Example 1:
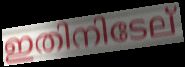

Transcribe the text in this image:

ഇതിനിടേല്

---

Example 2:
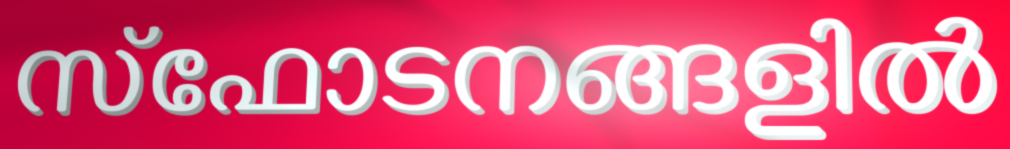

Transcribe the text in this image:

സ്ഫോടനങ്ങളിൽ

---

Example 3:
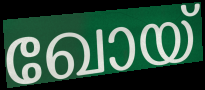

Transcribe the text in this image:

ഖോയ്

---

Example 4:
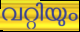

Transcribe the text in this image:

വറ്റിയും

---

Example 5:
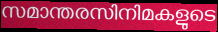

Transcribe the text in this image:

സമാന്തരസിനിമകളുടെ